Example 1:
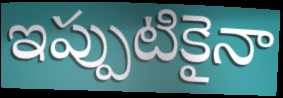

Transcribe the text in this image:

ఇప్పుటికైనా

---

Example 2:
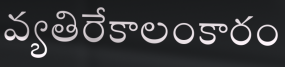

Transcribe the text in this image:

వ్యతిరేకాలంకారం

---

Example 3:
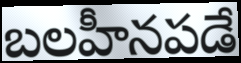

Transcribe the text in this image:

బలహీనపడే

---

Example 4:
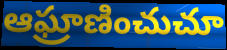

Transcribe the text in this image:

ఆఘ్రాణించుచూ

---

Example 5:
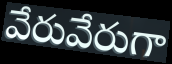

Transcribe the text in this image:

వేరువేరుగా